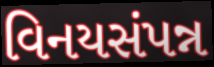
વિનયસંપન્ન